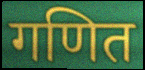
गणित